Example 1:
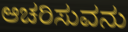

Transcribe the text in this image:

ಆಚರಿಸುವನು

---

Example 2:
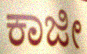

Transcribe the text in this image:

ಕಾಜೀ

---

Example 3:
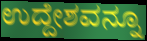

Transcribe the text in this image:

ಉದ್ದೇಶವನ್ನೂ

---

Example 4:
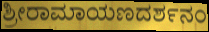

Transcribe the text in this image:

ಶ್ರೀರಾಮಾಯಣದರ್ಶನಂ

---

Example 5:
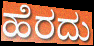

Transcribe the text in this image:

ಹೆರದು